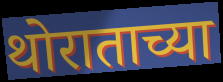
थोराताच्या